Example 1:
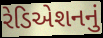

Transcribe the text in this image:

રેડિએશનનું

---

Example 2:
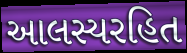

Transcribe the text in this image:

આલસ્યરહિત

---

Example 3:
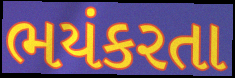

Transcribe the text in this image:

ભયંકરતા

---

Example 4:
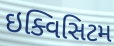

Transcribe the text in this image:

ઇક્વિસિટમ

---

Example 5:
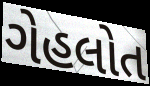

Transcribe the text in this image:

ગેહલોત